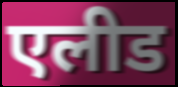
एलीड